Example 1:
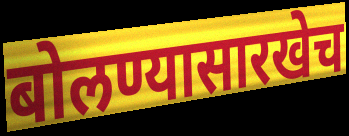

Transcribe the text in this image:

बोलण्यासारखेच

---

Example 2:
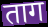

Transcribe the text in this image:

ताग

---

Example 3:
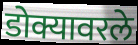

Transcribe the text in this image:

डोक्यावरले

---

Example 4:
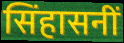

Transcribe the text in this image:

सिंहासनीं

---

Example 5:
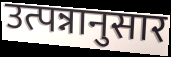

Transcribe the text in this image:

उत्पन्नानुसार